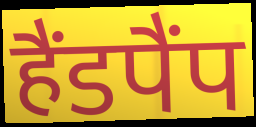
हैंडपैंप